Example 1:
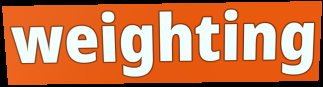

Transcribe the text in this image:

weighting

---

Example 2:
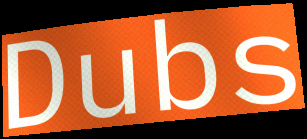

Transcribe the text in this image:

Dubs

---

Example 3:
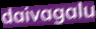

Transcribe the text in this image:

daivagalu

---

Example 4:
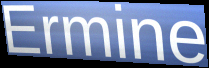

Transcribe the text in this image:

Ermine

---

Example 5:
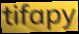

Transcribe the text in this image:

tifapy